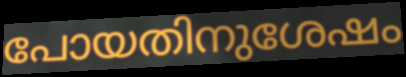
പോയതിനുശേഷം